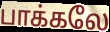
பாக்கலே